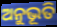
ଅନୁଭୂତି